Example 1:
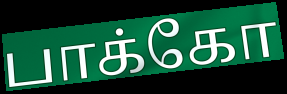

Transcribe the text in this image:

பாக்கோ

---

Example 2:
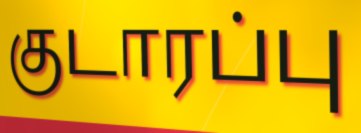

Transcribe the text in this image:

குடாரப்பு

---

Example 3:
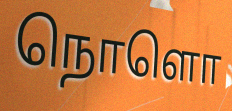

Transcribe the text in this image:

நொளொ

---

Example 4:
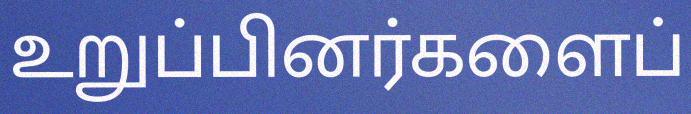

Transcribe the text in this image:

உறுப்பினர்களைப்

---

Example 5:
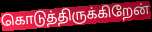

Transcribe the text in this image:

கொடுத்திருக்கிறேன்